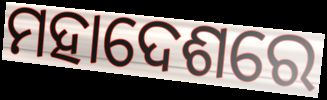
ମହାଦେଶରେ